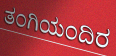
ತಂಗಿಯಂದಿರ